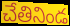
చేతినిండ